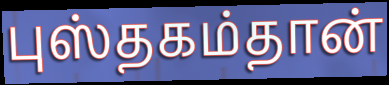
புஸ்தகம்தான்